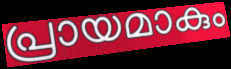
പ്രായമാകും